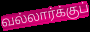
வல்லார்க்குப்